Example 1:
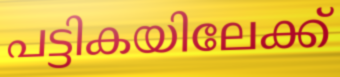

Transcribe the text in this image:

പട്ടികയിലേക്ക്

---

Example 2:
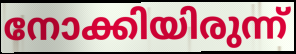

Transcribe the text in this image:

നോക്കിയിരുന്ന്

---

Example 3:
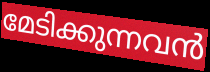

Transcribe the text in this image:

മേടിക്കുന്നവൻ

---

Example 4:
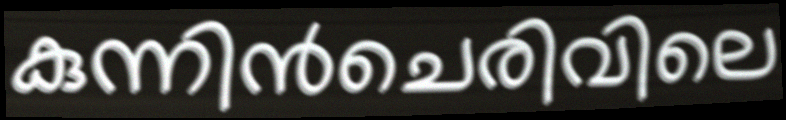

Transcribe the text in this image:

കുന്നിൻചെരിവിലെ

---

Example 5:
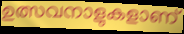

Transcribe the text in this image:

ഉത്സവനാളുകളാണ്